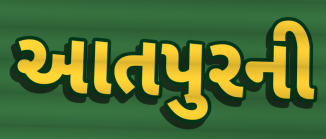
આતપુરની